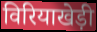
विरियाखेड़ी